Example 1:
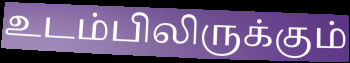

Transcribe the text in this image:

உடம்பிலிருக்கும்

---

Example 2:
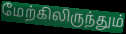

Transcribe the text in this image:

மேற்கிலிருந்தும்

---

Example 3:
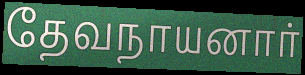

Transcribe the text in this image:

தேவநாயனார்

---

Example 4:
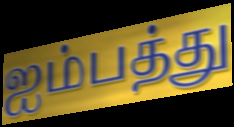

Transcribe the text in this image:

ஐம்பத்து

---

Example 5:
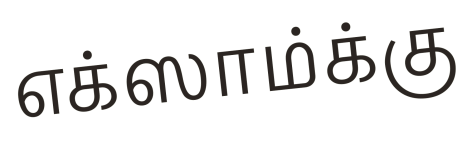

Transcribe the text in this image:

எக்ஸாம்க்கு